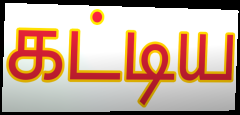
கட்டிய